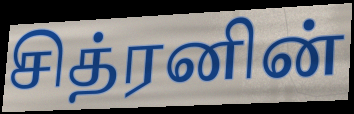
சித்ரனின்